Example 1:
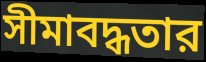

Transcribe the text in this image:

সীমাবদ্ধতার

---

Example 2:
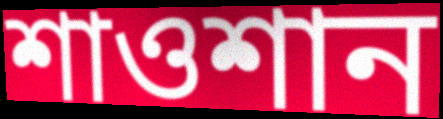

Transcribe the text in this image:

শাওশান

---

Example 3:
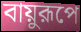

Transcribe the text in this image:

বায়ুরূপে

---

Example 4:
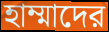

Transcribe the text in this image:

হাম্মাদের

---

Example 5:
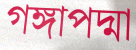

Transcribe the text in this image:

গঙ্গাপদ্মা